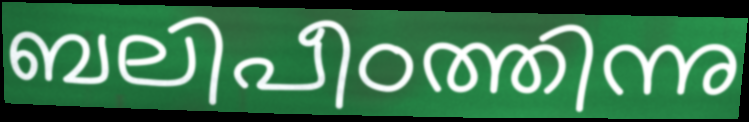
ബലിപീഠത്തിന്നു